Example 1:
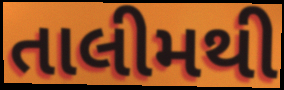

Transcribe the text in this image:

તાલીમથી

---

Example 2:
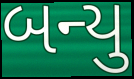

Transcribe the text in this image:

બન્યુ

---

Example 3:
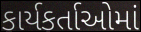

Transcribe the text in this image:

કાર્યકર્તાઓમાં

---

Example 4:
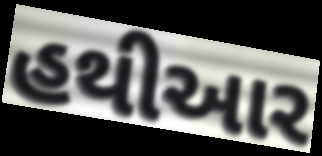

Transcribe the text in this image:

હથીઆર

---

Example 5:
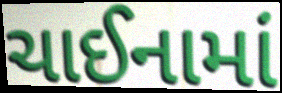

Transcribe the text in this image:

ચાઈનામાં